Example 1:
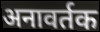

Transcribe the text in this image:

अनावर्तक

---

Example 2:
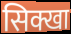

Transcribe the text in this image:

सिक्खा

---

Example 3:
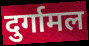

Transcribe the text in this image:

दुर्गामल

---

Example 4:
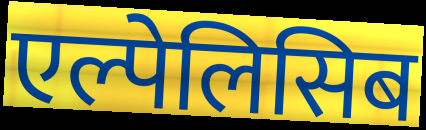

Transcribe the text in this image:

एल्पेलिसिब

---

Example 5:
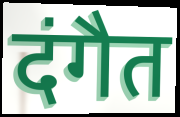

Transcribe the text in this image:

दंगैत